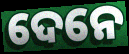
ଦେନେ